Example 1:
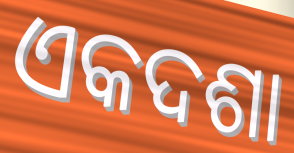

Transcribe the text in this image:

ଏକଦଶା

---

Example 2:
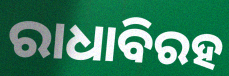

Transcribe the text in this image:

ରାଧାବିରହ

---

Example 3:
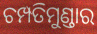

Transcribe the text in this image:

ଚମ୍ପତିମୁଣ୍ଡାର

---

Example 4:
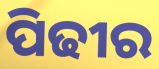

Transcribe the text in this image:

ପିଢୀର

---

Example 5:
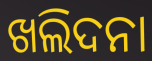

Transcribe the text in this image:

ଖଲିଦନା